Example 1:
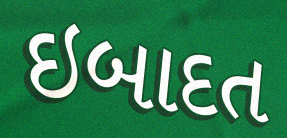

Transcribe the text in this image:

ઇબાદત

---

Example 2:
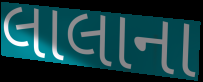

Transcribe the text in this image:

લાલાના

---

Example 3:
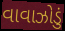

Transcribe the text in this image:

વાવાઝોડું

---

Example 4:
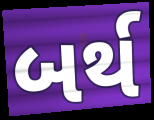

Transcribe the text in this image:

બર્થ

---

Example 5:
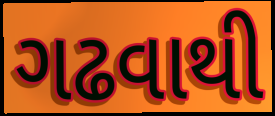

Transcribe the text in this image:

ગઢવાથી